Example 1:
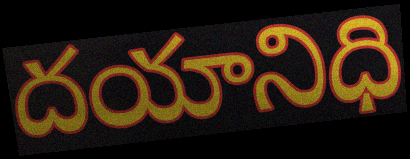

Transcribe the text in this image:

దయానిధి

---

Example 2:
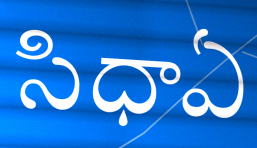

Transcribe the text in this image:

సిధాఏ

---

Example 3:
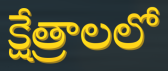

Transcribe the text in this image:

క్షేత్రాలలో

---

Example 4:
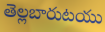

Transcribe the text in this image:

తెల్లబారుటయు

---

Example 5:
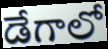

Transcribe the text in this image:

డేగాలో